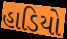
હાડિયો